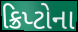
ક્રિપ્ટોના